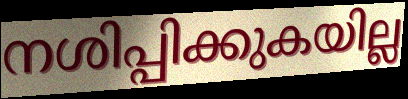
നശിപ്പിക്കുകയില്ല